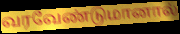
வரவேண்டுமானால்